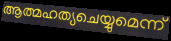
ആത്മഹത്യചെയ്യുമെന്ന്